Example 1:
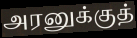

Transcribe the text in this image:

அரனுக்குத்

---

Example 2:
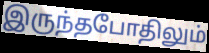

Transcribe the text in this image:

இருந்தபோதிலும்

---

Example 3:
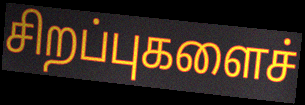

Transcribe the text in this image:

சிறப்புகளைச்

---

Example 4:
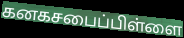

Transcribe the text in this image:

கனகசபைப்பிள்ளை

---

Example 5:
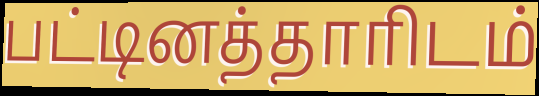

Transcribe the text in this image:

பட்டினத்தாரிடம்